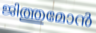
ജിത്തുമോൻ